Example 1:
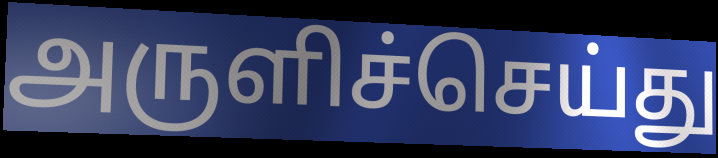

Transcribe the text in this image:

அருளிச்செய்து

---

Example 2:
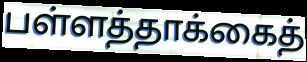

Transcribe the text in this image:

பள்ளத்தாக்கைத்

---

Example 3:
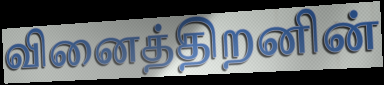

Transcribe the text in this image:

வினைத்திறனின்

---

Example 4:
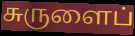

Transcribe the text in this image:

சுருளைப்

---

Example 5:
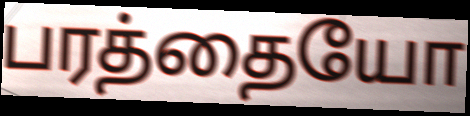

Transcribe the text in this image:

பரத்தையோ